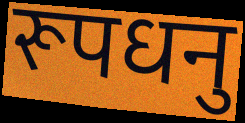
रूपधनु